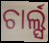
ଚାର୍ଲ୍ସ